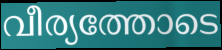
വീര്യത്തോടെ